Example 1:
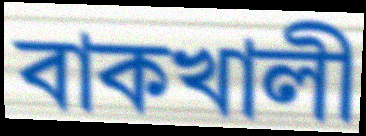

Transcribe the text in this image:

বাকখালী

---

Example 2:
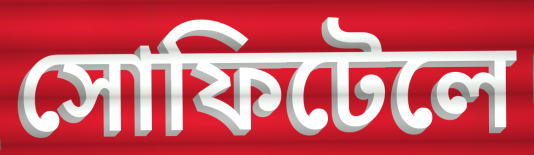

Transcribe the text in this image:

সোফিটেলে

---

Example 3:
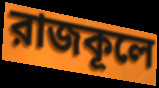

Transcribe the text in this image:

রাজকূলে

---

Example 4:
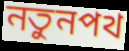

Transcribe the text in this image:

নতুনপথ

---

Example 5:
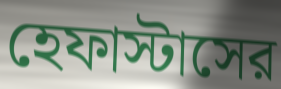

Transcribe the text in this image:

হেফাস্টাসের